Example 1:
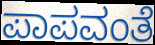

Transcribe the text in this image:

ಪಾಪವಂತೆ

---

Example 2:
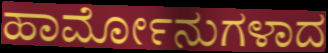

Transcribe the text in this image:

ಹಾರ್ಮೋನುಗಳಾದ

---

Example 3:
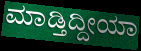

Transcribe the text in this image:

ಮಾಡ್ತಿದ್ದೀಯಾ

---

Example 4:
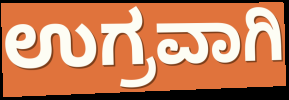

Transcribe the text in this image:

ಉಗ್ರವಾಗಿ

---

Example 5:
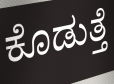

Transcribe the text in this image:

ಕೊಡುತ್ತೆ